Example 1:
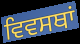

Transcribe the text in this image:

ਵਿਵਸਥਾਂ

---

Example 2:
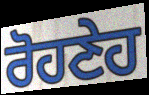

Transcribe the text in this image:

ਰੋਹਣੇਹ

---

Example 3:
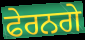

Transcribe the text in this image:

ਫੇਰਨਗੇ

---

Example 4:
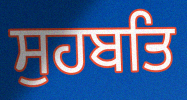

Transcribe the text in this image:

ਸੁਹਬਤਿ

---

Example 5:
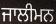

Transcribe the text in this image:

ਜਾਲੀਮਨ